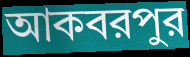
আকবরপুর